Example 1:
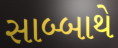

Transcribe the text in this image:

સાબ્બાથે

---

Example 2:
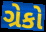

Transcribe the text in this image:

ગ્રેકો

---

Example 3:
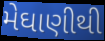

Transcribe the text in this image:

મેઘાણીથી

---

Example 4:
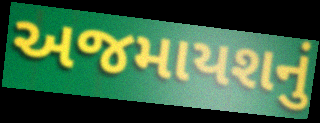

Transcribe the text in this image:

અજમાયશનું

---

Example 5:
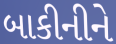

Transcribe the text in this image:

બાકીનીને